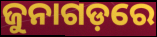
ଜୁନାଗଡ଼ରେ